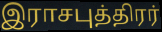
இராசபுத்திரர்